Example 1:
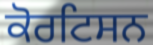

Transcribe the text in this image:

ਕੋਰਟਿਸਨ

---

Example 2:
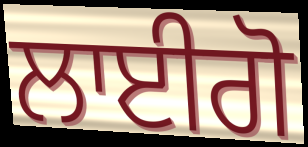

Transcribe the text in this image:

ਲਾਈਗੋ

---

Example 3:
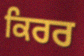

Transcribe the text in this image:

ਕਿਰਰ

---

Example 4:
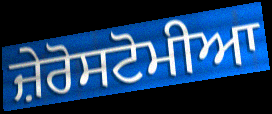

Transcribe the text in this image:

ਜ਼ੇਰੋਸਟੋਮੀਆ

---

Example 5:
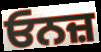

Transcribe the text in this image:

ਓਨਜ਼